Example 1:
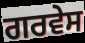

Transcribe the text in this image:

ਗਰਵੇਸ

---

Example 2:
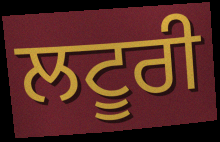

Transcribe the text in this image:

ਲਟੂਰੀ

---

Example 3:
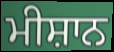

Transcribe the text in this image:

ਮੀਸ਼ਾਨ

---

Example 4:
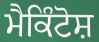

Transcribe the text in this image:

ਮੈਕਿੰਟੋਸ਼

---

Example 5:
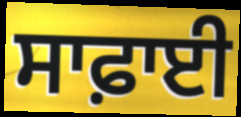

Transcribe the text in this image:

ਸਾਫ਼ਾਈ